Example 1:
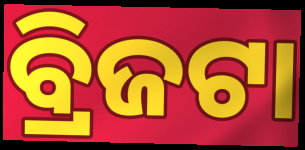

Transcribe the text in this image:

ବ୍ରିଜଟା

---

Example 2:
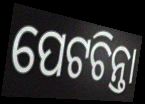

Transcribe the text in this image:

ପେଟଚିନ୍ତା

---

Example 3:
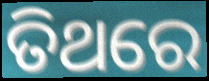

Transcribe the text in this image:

ତିଥରେ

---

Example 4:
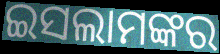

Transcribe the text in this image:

ଇସଲାମଙ୍କର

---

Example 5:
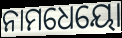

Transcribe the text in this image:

ନାମଧେୟୋ